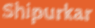
Shipurkar